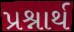
પ્રશ્નાર્થ